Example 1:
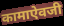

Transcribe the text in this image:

कामाऐवजी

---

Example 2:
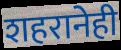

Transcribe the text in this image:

शहरानेही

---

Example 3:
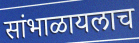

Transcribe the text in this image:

सांभाळायलाच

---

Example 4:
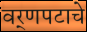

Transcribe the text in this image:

वर्णपटाचे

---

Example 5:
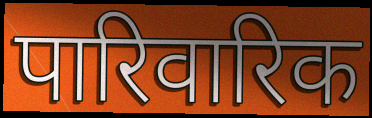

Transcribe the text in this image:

पारिवारिक